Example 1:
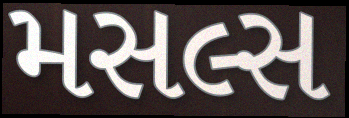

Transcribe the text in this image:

મસલ્સ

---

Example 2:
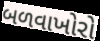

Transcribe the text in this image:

બળવાખોરો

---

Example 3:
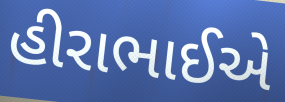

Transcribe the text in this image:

હીરાભાઈએ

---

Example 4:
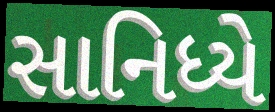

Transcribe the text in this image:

સાનિધ્યે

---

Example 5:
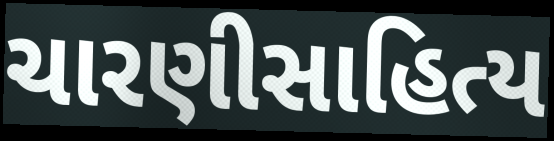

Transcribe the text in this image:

ચારણીસાહિત્ય